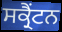
ਸਕ੍ਰੈਂਟਨ